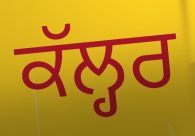
ਕੱਲ੍ਹਰ